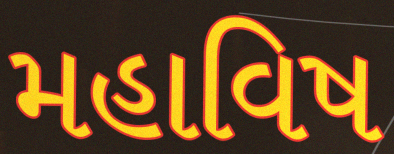
મહાવિષ